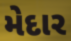
મેદાર